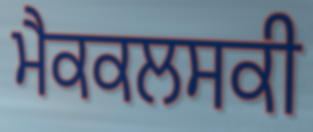
ਮੈਕਕਲਸਕੀ